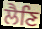
ਲੈਣਿ